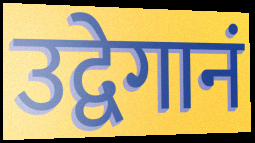
उद्वेगानं